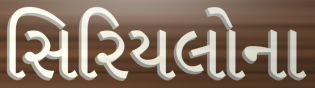
સિરિયલોના